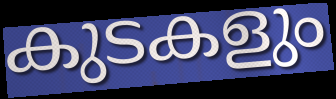
കുടകളും